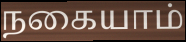
நகையாம்